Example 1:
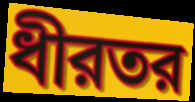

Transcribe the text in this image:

ধীরতর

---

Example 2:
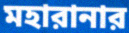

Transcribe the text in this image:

মহারানার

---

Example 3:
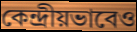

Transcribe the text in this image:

কেন্দ্রীয়ভাবেও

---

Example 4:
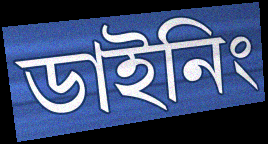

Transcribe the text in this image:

ডাইনিং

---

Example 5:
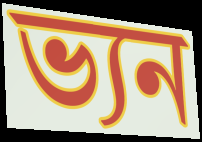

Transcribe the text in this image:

ভ্যন